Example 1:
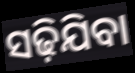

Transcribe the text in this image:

ସଢ଼ିଯିବା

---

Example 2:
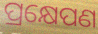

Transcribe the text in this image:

ପ୍ରକ୍ଷେପଣ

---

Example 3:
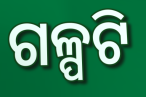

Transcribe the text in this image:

ଗଳ୍ପଟି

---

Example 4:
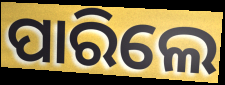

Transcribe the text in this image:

ପାରିଲେ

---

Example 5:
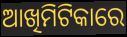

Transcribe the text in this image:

ଆଖିମିଟିକାରେ